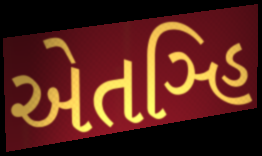
એતઞ્હિ